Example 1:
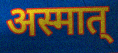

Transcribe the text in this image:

अस्मात्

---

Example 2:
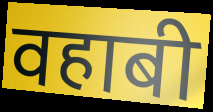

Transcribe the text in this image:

वहाबी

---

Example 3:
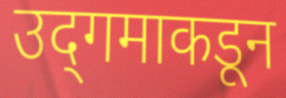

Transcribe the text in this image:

उद्‌गमाकडून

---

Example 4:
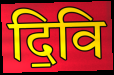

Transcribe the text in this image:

दि॒वि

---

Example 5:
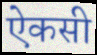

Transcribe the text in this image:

ऐकसी